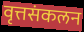
वृत्तसंकलन